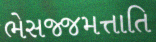
ભેસજ્જમત્તાતિ